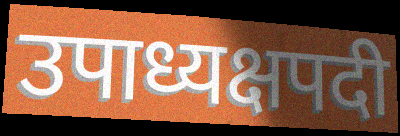
उपाध्यक्षपदी